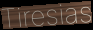
Tiresias